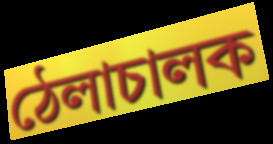
ঠেলাচালক